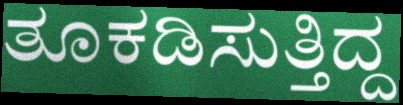
ತೂಕಡಿಸುತ್ತಿದ್ದ